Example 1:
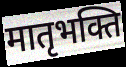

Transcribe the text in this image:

मातृभक्ति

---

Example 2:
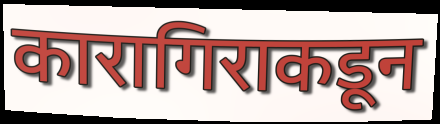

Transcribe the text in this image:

कारागिराकडून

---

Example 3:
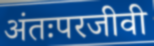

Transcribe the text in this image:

अंतःपरजीवी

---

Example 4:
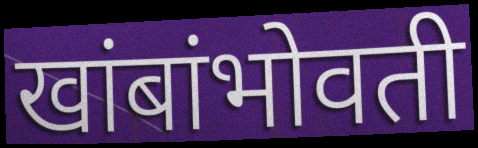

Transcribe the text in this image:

खांबांभोवती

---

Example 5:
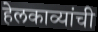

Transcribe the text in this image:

हेलकाव्यांची